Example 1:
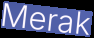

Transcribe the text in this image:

Merak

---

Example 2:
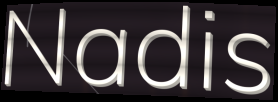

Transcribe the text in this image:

Nadis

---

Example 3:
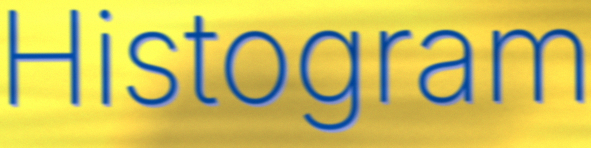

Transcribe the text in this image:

Histogram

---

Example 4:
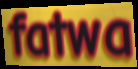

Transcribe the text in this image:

fatwa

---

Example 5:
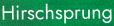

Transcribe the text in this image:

Hirschsprung